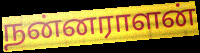
நன்னராளன்